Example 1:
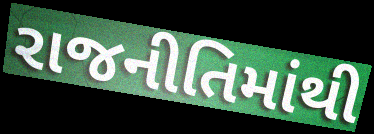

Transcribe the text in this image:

રાજનીતિમાંથી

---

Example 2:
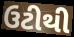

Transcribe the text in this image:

ઉટીથી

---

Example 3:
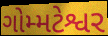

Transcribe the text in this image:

ગોમ્મટેશ્વર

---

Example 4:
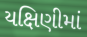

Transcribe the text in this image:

યક્ષિણીમાં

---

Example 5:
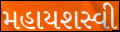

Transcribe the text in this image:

મહાયશસ્વી